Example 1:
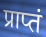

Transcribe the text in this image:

प्राप्तं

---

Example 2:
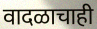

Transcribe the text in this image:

वादळाचाही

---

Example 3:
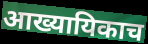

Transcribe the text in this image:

आख्यायिकाच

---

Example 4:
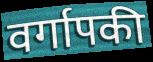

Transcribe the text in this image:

वर्गापकी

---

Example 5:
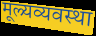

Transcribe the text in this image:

मूल्यव्यवस्था